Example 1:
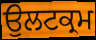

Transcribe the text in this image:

ਉਲਟਕ੍ਰਮ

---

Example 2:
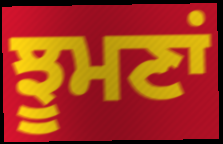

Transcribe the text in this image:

ਝੂਮਣਾਂ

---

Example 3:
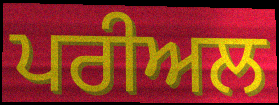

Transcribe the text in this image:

ਪਰੀਅਲ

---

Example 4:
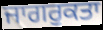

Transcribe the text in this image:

ਜਾਗਰੁਕਤਾ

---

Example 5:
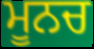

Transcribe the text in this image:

ਮੂਨਚ